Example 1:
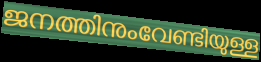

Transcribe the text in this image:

ജനത്തിനുംവേണ്ടിയുള്ള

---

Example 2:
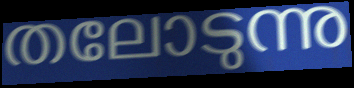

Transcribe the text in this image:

തലോടുന്നു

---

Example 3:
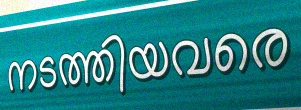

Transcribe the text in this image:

നടത്തിയവരെ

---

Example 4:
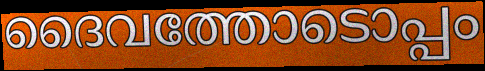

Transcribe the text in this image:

ദൈവത്തോടൊപ്പം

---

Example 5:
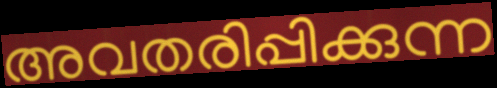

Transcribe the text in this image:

അവതരിപ്പിക്കുന്ന